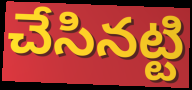
చేసినట్టి